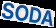
SODA